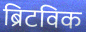
ब्रिटविक